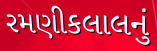
રમણીકલાલનું